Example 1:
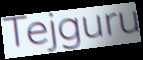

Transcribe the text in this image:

Tejguru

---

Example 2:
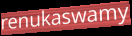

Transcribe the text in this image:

renukaswamy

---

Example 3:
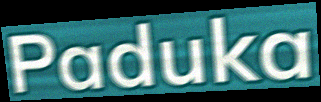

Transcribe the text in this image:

Paduka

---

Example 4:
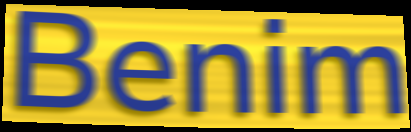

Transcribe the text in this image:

Benim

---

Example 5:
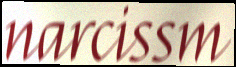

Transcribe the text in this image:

narcissm